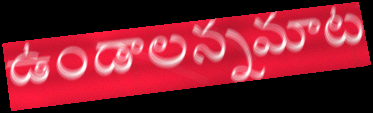
ఉండాలన్నమాట